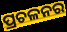
ପ୍ରଚଳନର